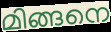
മിങ്ങനെ